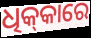
ଧିକ୍‌କାରେ